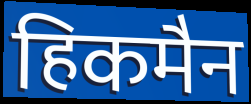
हिकमैन